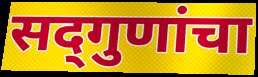
सद्‍गुणांचा